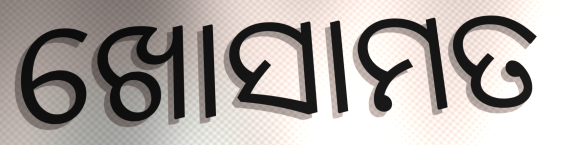
ଖୋସାମତ